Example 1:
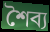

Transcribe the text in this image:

শৈব্য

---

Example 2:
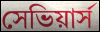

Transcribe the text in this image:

সেভিয়ার্স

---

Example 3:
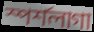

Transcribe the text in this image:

স্পর্শলাগা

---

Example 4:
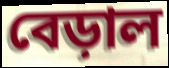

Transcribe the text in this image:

বেড়াল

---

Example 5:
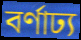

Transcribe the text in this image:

বর্ণাঢ্য